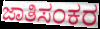
ಜಾತಿಸಂಕರ